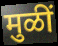
मुळीं